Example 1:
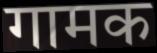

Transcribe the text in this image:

गामक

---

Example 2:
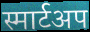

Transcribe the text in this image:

स्मार्टअप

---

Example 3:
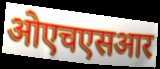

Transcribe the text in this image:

ओएचएसआर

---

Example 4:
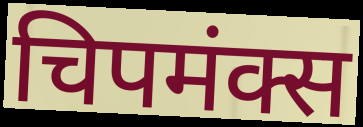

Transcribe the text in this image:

चिपमंक्स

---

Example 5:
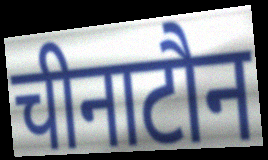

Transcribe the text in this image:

चीनाटौन